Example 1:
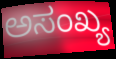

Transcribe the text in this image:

ಅಸಂಖ್ಯ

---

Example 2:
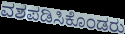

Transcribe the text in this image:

ವಶಪಡಿಸಿಕೊಂಡರು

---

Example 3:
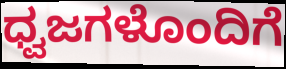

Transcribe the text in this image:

ಧ್ವಜಗಳೊಂದಿಗೆ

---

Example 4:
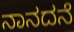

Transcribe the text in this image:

ನಾನದನೆ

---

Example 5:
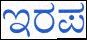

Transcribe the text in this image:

ಇರಪ